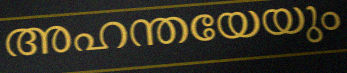
അഹന്തയേയും